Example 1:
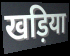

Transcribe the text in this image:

खड़िया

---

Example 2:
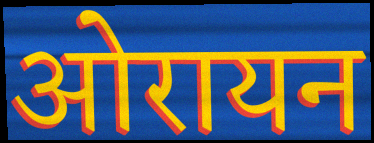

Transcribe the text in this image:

ओरायन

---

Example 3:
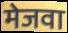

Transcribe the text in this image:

मेजवा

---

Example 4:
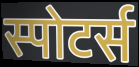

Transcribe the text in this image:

स्पोटर्स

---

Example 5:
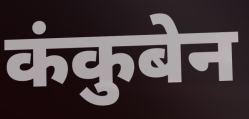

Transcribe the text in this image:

कंकुबेन